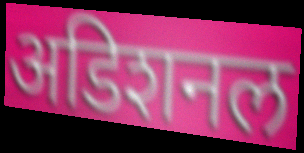
अडिशनल